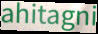
ahitagni